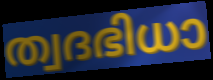
ത്വദഭിധാ